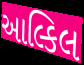
આલ્કિલ